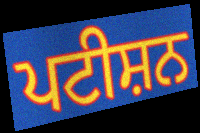
ਪਟੀਸ਼ਨ